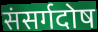
संसर्गदोष